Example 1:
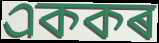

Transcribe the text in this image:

এককৰ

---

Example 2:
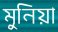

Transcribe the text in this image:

মুনিয়া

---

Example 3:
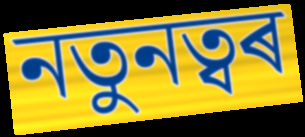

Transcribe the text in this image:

নতুনত্বৰ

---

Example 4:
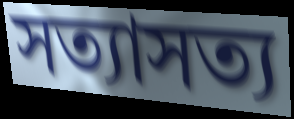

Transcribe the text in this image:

সত্যাসত্য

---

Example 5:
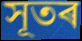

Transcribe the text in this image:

সূতৰ